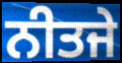
ਨੀਤਜੇ